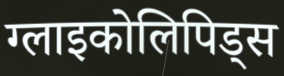
ग्लाइकोलिपिड्स